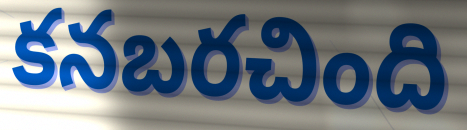
కనబరచింది